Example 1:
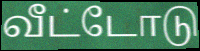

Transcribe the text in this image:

வீட்டோடு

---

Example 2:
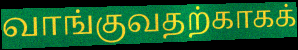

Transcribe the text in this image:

வாங்குவதற்காகக்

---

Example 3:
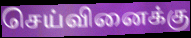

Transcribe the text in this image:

செய்வினைக்கு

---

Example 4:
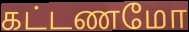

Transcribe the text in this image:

கட்டணமோ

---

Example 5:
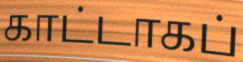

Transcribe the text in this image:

காட்டாகப்